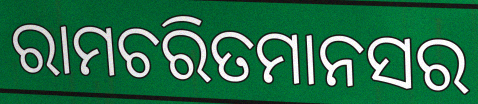
ରାମଚରିତମାନସର